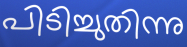
പിടിച്ചുതിന്നു